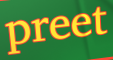
preet